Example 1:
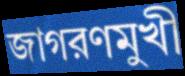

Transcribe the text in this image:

জাগরণমুখী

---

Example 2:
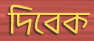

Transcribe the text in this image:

দিবেক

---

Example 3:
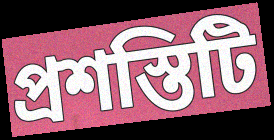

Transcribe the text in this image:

প্রশস্তিটি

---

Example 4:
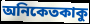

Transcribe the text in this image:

অনিকেতকাকু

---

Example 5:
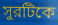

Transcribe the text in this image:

সুরটিকে